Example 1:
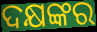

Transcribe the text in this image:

ଦକ୍ଷଙ୍କର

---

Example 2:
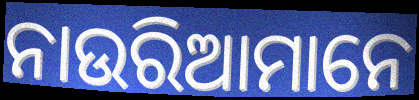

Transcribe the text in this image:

ନାଉରିଆମାନେ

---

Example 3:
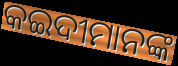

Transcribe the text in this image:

କଇଦୀମାନଙ୍କ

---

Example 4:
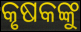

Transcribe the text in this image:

କୃଷକଙ୍କୁ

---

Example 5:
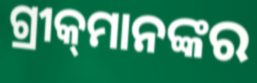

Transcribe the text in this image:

ଗ୍ରୀକ୍‌ମାନଙ୍କର